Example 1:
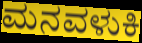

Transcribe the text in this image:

ಮನವಳುಕಿ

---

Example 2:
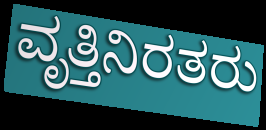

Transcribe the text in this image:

ವೃತ್ತಿನಿರತರು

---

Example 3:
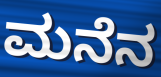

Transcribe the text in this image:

ಮನೆನ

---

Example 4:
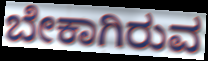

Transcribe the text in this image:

ಬೇಕಾಗಿರುವ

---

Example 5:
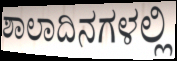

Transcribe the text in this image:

ಶಾಲಾದಿನಗಳಲ್ಲಿ